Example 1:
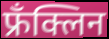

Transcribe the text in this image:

फ्रँक्लिन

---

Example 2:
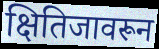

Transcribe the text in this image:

क्षितिजावरून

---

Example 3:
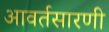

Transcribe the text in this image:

आवर्तसारणी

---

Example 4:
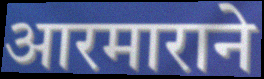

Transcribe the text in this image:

आरमाराने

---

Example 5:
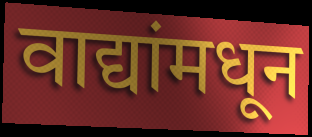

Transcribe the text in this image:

वाद्यांमधून